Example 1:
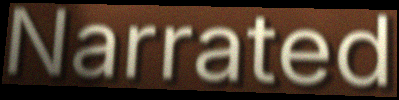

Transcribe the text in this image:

Narrated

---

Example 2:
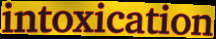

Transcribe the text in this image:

intoxication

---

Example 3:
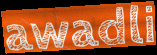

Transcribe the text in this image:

awadli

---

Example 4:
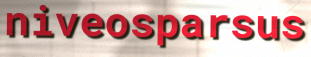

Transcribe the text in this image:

niveosparsus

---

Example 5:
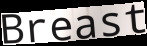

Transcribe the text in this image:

Breast